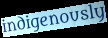
indigenously